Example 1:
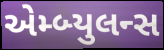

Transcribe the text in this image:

એમ્બ્યુલન્સ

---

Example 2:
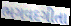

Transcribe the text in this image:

ભગવદગીતા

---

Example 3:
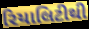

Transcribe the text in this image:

રિયાલિટીથી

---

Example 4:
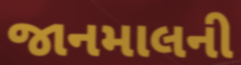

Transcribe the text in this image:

જાનમાલની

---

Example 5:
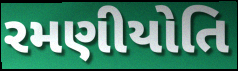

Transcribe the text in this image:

રમણીયોતિ